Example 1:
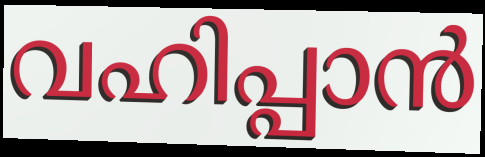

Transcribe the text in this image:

വഹിപ്പാൻ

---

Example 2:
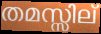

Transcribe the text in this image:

തമസ്സില്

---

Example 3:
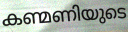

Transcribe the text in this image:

കണ്മണിയുടെ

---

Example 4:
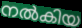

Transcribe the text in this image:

നൽകിയ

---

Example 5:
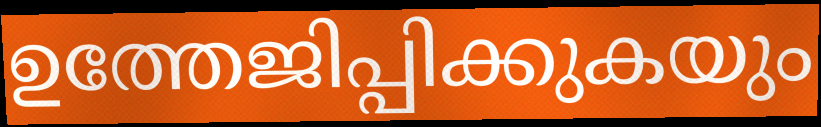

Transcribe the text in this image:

ഉത്തേജിപ്പിക്കുകയും